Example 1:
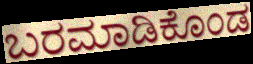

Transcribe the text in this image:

ಬರಮಾಡಿಕೊಂಡ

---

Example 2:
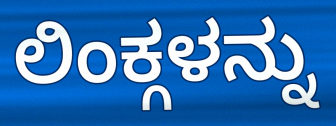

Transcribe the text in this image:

ಲಿಂಕ್ಗಳನ್ನು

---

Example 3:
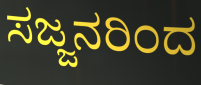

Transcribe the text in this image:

ಸಜ್ಜನರಿಂದ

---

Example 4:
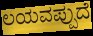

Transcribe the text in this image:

ಲಯವಪ್ಪುದೆ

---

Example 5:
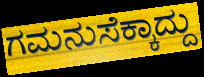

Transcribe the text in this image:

ಗಮನುಸೆಕ್ಕಾದ್ದು